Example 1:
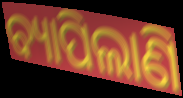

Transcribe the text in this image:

ବ୍ୟାପିଲାଣି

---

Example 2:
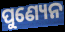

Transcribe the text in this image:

ପୁଣ୍ୟେନ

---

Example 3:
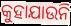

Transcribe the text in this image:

କୁହାଯାଉନି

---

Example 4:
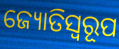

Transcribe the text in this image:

ଜ୍ୟୋତିସ୍ୱରୂପ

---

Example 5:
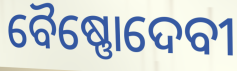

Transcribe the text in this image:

ବୈଷ୍ଣୋଦେବୀ